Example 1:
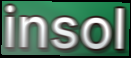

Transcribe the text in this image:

insol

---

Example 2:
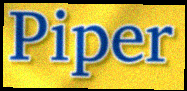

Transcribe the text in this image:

Piper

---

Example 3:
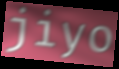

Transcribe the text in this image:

jiyo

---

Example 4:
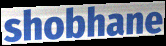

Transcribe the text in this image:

shobhane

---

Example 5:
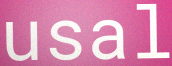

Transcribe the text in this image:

usal